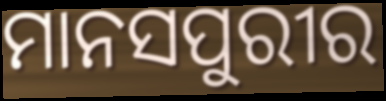
ମାନସପୁରୀର